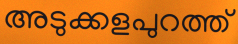
അടുക്കളപുറത്ത്